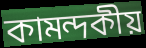
কামন্দকীয়